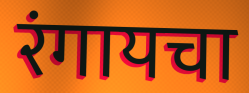
रंगायचा